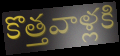
కొత్తవాళ్లకి